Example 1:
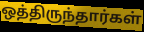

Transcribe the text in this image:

ஒத்திருந்தார்கள்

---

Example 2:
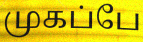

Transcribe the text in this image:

முகப்பே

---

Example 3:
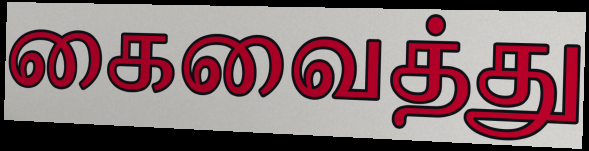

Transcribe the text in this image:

கைவைத்து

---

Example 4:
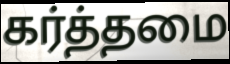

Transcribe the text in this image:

கர்த்தமை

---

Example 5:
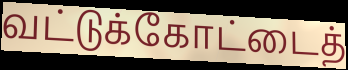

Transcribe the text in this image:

வட்டுக்கோட்டைத்